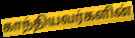
காந்தியவர்களின்